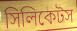
সিলিকেটস